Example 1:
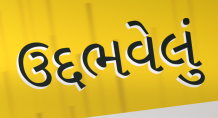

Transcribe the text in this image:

ઉદ્દભવેલું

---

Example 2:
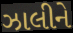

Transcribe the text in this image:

ઝાલીને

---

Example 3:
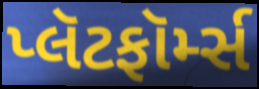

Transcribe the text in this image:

પ્લૅટફૉર્મ્સ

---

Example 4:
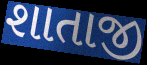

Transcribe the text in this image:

શાતાજી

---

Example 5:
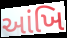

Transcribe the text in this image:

આંખિ